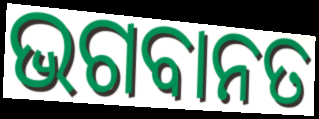
ଭଗବାନତ